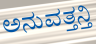
ಅನುವತ್ತನ್ತಿ